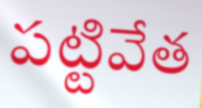
పట్టివేత